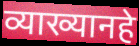
व्याख्यानहे